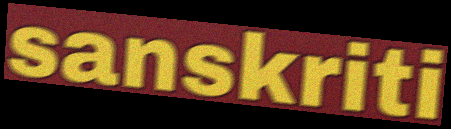
sanskriti